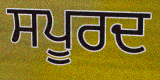
ਸਪੂਰਦ